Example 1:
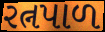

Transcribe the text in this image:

રત્નપાળ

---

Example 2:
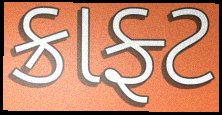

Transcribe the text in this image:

ક્રાફ્ટ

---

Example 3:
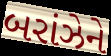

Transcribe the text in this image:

બરાંઝેને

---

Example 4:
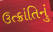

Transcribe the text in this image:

ઉત્ક્રાંતિનું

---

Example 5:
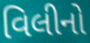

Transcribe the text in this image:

વિલીનો